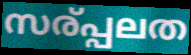
സര്പ്പലത